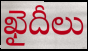
ఖైదీలు